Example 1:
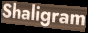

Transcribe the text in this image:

Shaligram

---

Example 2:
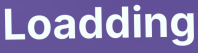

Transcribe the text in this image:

Loadding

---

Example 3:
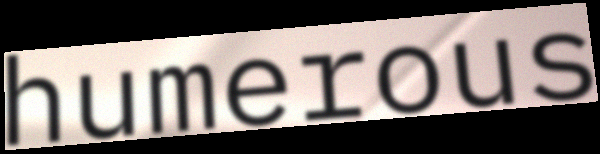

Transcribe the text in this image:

humerous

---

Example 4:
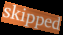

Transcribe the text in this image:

skipped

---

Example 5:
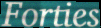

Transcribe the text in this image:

Forties